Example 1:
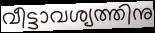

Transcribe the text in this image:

വീട്ടാവശ്യത്തിനു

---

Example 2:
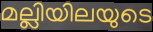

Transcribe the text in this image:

മല്ലിയിലയുടെ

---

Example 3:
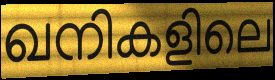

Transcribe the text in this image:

ഖനികളിലെ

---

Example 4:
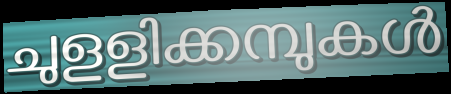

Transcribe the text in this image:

ചുളളിക്കമ്പുകൾ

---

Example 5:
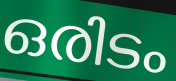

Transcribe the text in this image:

ഒരിടം